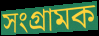
সংগ্ৰামক